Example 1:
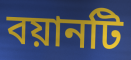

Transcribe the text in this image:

বয়ানটি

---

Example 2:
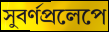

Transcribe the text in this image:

সুবর্ণপ্রলেপে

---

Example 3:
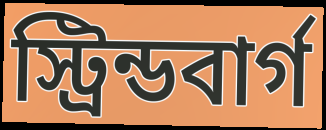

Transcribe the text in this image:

স্ট্রিন্ডবার্গ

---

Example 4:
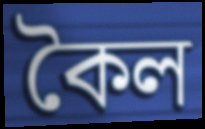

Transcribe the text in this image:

কৈল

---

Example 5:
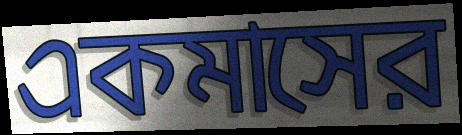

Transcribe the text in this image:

একমাসের